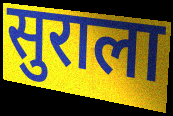
सुराला